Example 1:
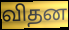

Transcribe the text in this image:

விதன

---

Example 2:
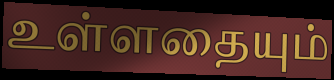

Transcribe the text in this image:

உள்ளதையும்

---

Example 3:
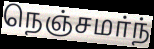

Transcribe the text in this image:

நெஞ்சமர்ந்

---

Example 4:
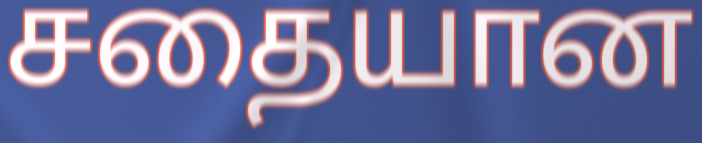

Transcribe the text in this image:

சதையான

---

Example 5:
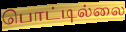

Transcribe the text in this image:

பொட்டில்லை